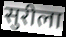
सुरीला